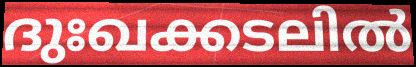
ദുഃഖക്കടലിൽ